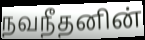
நவநீதனின்